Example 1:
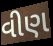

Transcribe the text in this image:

વીણ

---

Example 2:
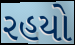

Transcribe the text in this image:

રહયો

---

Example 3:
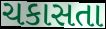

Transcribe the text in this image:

ચકાસતા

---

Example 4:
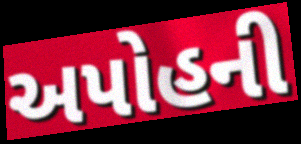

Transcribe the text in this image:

અપોહની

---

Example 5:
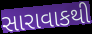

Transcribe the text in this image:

સારાવાકથી